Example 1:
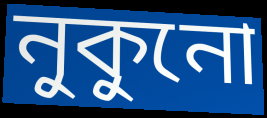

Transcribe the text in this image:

নুকুনো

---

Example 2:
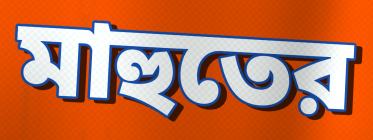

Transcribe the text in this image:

মাহুতের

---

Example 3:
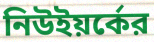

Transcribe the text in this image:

নিউইয়র্কের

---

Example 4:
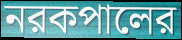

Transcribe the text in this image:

নরকপালের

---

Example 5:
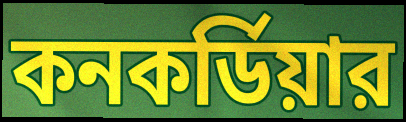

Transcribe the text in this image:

কনকর্ডিয়ার